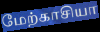
மேற்காசியா